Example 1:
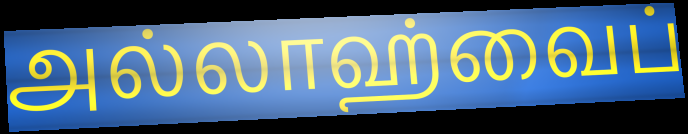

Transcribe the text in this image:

அல்லாஹ்வைப்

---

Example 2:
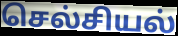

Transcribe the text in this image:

செல்சியல்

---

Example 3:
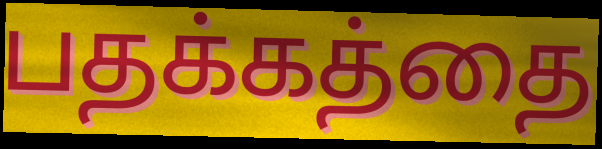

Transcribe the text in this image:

பதக்கத்தை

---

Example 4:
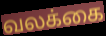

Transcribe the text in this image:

வலக்கை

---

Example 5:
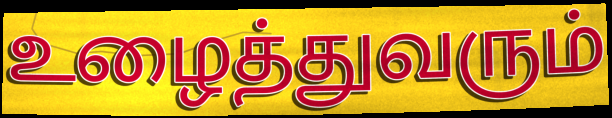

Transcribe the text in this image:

உழைத்துவரும்